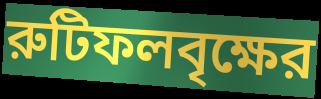
রুটিফলবৃক্ষের